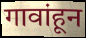
गावांहून